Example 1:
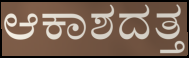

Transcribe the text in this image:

ಆಕಾಶದತ್ತ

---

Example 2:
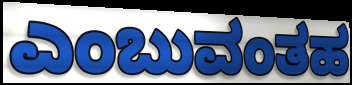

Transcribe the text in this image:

ಎಂಬುವಂತಹ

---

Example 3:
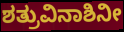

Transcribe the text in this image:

ಶತ್ರುವಿನಾಶಿನೀ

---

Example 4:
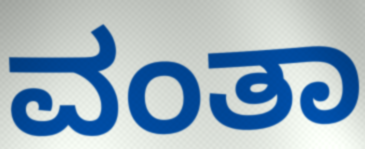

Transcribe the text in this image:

ವಂತಾ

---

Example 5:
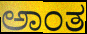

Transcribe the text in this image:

ಅಾಂತ